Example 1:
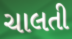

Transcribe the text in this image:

ચાલતી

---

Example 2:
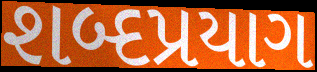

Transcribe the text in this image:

શબ્દપ્રયાગ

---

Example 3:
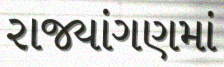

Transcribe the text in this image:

રાજ્યાંગણમાં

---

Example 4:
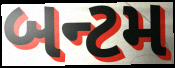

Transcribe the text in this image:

બન્ટમ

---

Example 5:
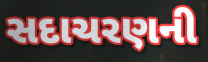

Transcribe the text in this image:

સદાચરણની